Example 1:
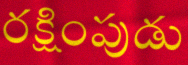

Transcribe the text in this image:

రక్షింపుడు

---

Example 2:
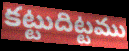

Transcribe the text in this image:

కట్టుదిట్టము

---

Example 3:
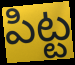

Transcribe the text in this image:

పిట్ట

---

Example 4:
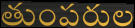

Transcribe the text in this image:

తుంపరుల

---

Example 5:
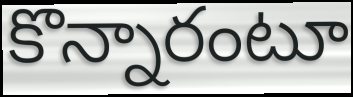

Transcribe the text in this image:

కొన్నారంటూ